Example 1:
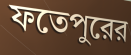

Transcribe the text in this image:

ফতেপুরের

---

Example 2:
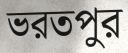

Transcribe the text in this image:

ভরতপুর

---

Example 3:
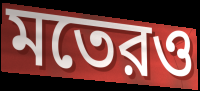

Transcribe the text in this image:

মতেরও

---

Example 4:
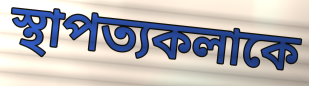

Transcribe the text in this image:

স্থাপত্যকলাকে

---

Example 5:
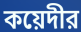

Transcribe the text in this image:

কয়েদীর